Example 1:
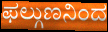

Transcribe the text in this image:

ಫಲ್ಗುಣನಿಂದ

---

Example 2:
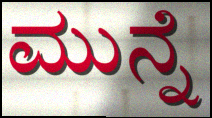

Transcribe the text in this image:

ಮುನ್ನೆ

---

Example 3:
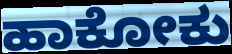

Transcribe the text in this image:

ಹಾಕೋಕು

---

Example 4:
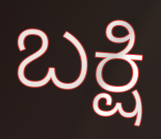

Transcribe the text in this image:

ಬಕ್ಷಿ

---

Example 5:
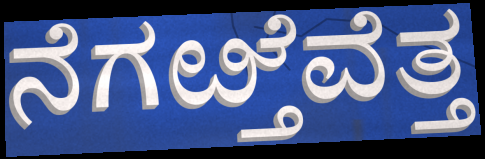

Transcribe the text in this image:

ನೆಗೞ್ತೆವೆತ್ತ